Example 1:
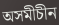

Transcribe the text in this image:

অসমীচীন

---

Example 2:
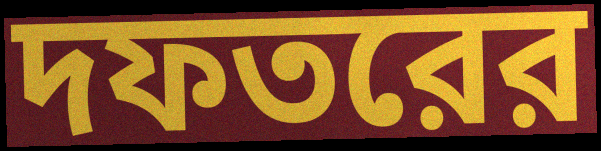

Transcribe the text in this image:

দফতরের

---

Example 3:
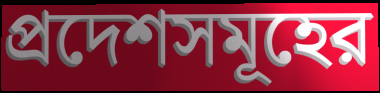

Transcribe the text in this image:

প্রদেশসমূহের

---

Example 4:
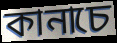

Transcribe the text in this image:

কানাচে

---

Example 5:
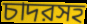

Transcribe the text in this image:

চাদরসহ